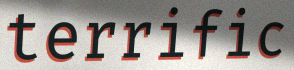
terrific